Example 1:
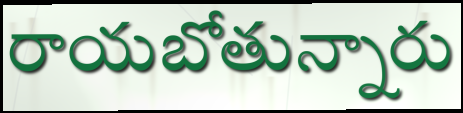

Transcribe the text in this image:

రాయబోతున్నారు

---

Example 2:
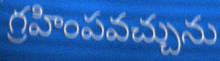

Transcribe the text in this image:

గ్రహింపవచ్చును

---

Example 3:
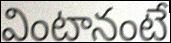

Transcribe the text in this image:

వింటానంటే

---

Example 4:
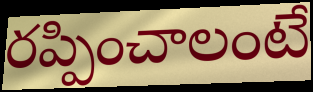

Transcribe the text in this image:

రప్పించాలంటే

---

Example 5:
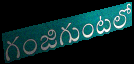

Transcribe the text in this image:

గంజిగుంటలో